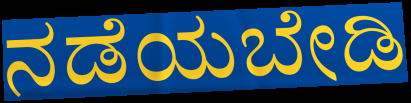
ನಡೆಯಬೇಡಿ